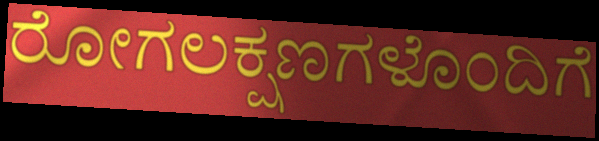
ರೋಗಲಕ್ಷಣಗಳೊಂದಿಗೆ